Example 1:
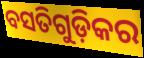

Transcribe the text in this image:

ବସତିଗୁଡ଼ିକର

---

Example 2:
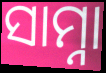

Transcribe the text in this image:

ସାମ୍ନା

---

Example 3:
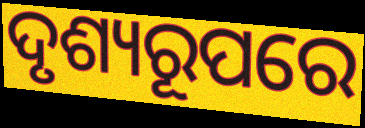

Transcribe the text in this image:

ଦୃଶ୍ୟରୂପରେ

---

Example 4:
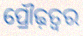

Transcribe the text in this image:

ପ୍ରୌଢ଼ତ୍ୱର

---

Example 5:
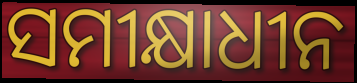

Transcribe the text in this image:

ସମୀକ୍ଷାଧୀନ